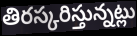
తిరస్కరిస్తున్నట్లు